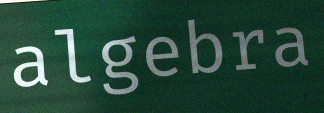
algebra